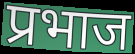
प्रभाज